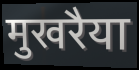
मुखरैया